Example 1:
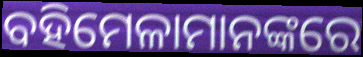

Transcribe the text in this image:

ବହିମେଳାମାନଙ୍କରେ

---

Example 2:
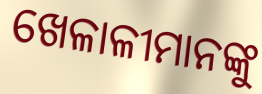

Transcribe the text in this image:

ଖେଳାଳୀମାନଙ୍କୁ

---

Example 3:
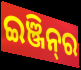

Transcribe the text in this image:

ଇଞ୍ଜିନ୍‍ର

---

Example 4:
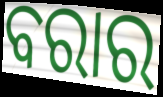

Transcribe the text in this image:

ବରାର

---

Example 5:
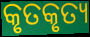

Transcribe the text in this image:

କୃତକୃତ୍ୟ